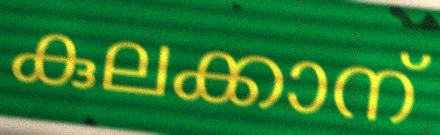
കുലക്കാന്